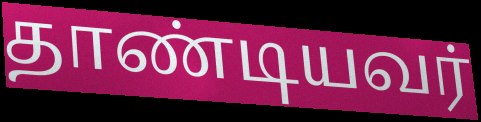
தாண்டியவர்